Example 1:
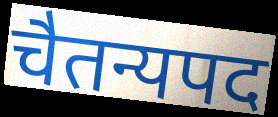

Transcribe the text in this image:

चैतन्यपद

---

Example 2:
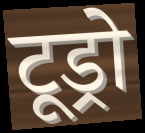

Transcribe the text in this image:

टूड्रो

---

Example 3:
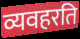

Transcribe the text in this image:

व्यवहरति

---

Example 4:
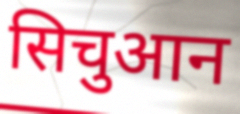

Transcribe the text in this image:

सिचुआन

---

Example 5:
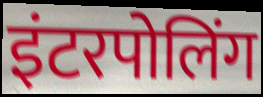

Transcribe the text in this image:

इंटरपोलिंग